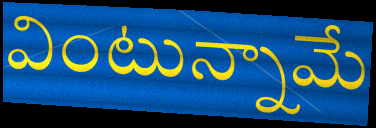
వింటున్నామే